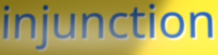
injunction